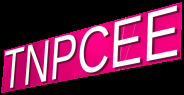
TNPCEE